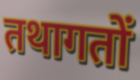
तथागतों